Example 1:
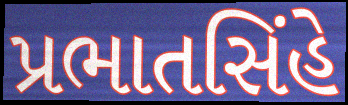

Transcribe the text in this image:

પ્રભાતસિંહે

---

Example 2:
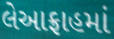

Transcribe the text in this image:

લેઆફ્રાહમાં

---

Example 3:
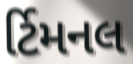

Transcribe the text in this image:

ર્ટિમનલ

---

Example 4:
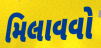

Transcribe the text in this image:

મિલાવવો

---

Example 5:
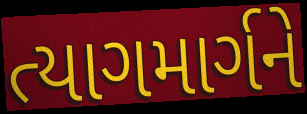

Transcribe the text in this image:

ત્યાગમાર્ગને